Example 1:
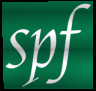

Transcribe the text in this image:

spf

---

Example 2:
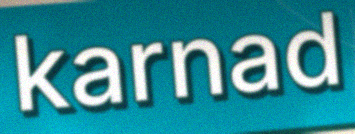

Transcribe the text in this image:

karnad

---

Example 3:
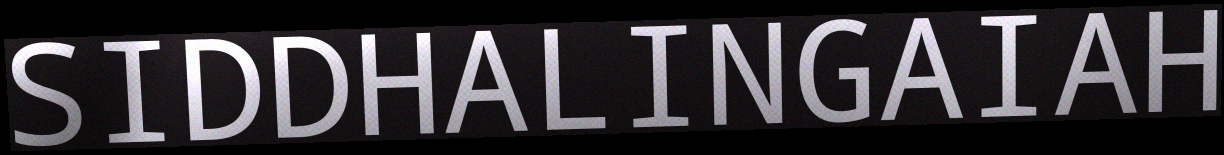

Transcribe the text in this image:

SIDDHALINGAIAH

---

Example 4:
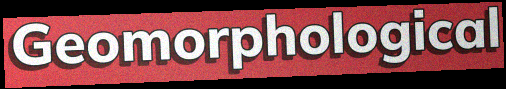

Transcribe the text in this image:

Geomorphological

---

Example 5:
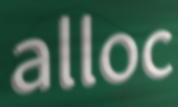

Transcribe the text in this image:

alloc